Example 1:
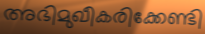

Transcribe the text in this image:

അഭിമുഖീകരിക്കേണ്ടി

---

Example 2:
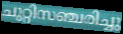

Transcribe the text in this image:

ചുറ്റിസഞ്ചരിച്ചു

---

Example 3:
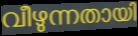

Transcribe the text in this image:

വീഴുന്നതായി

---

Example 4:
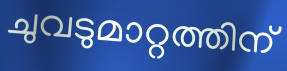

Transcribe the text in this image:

ചുവടുമാറ്റത്തിന്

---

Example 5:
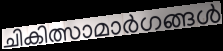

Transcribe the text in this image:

ചികിത്സാമാർഗങ്ങൾ